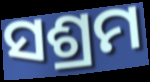
ସଶ୍ରମ